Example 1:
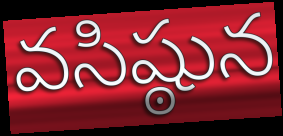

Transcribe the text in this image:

వసిష్ఠున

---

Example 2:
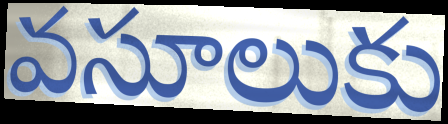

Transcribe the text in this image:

వసూలుకు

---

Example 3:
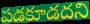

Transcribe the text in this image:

పడకూడదని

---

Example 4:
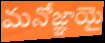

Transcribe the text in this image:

మనోజ్ఞాయై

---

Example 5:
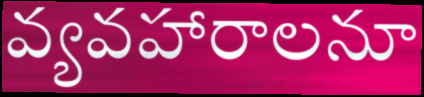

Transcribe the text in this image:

వ్యవహారాలనూ